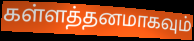
கள்ளத்தனமாகவும்